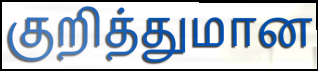
குறித்துமான